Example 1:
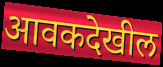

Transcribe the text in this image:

आवकदेखील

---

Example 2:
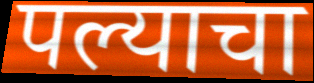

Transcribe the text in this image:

पल्याचा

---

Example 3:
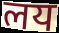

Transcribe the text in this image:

लय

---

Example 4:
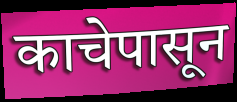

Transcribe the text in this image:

काचेपासून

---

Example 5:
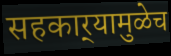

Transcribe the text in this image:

सहकार्यामुळेच